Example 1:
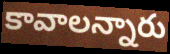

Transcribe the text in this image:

కావాలన్నారు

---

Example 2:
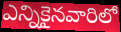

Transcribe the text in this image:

ఎన్నికైనవారిలో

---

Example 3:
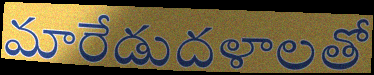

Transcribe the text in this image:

మారేడుదళాలతో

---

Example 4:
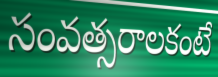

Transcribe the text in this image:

సంవత్సరాలకంటే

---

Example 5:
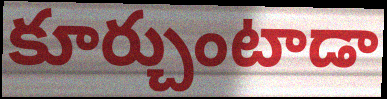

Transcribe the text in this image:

కూర్చుంటాడా